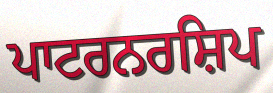
ਪਾਟਰਨਰਸ਼ਿਪ